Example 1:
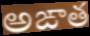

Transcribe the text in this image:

అఙాత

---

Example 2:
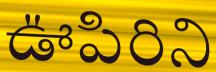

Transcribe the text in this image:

ఊపిరిని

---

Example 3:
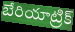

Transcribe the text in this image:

బేరియాట్రిక్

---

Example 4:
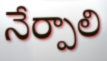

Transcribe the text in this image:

నేర్పాలి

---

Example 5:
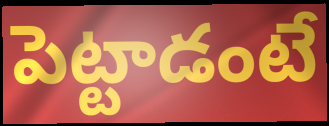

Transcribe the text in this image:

పెట్టాడంటే